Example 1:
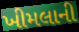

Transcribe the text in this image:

ખીમલાની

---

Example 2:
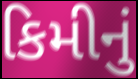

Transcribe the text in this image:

કિમીનું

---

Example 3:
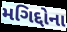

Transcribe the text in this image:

મગિદ્દોના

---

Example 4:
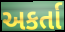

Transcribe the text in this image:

અકર્તા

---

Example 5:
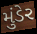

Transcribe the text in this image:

મુંડેર